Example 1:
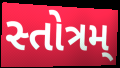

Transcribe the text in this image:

સ્તોત્રમ્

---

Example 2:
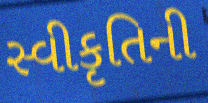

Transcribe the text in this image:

સ્વીકૃતિની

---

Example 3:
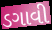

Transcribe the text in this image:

ડગાવી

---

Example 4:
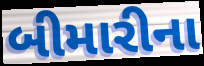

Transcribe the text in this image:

બીમારીના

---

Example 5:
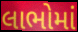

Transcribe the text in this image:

લાભોમાં